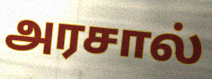
அரசால்